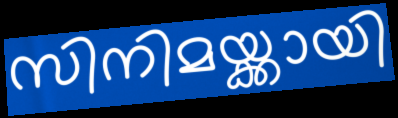
സിനിമയ്ക്കായി